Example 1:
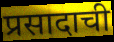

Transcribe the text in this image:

प्रसादाची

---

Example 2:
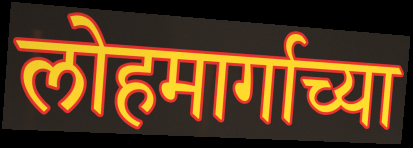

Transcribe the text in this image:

लोहमार्गाच्या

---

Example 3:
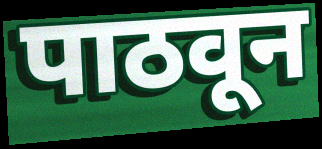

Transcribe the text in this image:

पाठवून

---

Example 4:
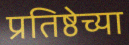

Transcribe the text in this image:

प्रतिष्ठेच्या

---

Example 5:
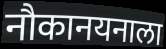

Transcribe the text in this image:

नौकानयनाला